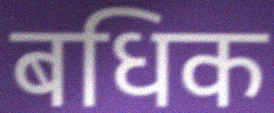
बधिक